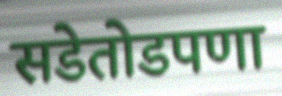
सडेतोडपणा